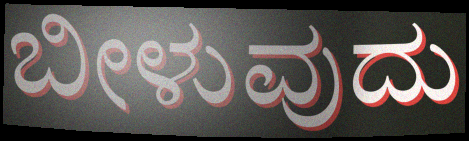
ಬೀಳುವುದು